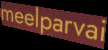
meelparvai